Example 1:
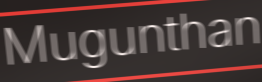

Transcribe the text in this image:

Mugunthan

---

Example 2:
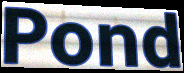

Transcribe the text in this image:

Pond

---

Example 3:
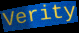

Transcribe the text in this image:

Verity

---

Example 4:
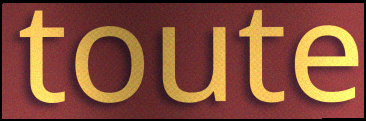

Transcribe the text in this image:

toute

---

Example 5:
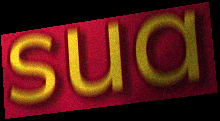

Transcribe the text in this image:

sua